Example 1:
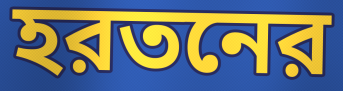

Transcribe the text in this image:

হরতনের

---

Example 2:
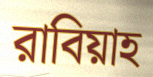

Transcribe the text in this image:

রাবিয়াহ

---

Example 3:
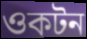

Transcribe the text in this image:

ওকটন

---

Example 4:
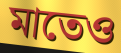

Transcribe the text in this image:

মাতেও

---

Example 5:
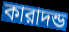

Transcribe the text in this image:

কারাদন্ড